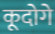
कूदोगे